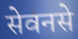
सेवनसे